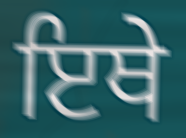
ਇਥੇ